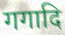
गगादि